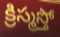
క్రిస్మస్తో